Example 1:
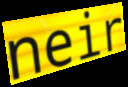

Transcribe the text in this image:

neir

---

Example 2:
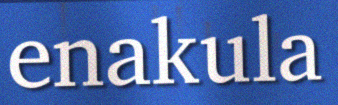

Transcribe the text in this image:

enakula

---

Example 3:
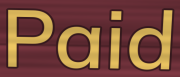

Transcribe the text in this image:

Paid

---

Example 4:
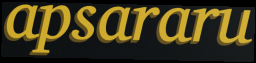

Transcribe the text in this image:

apsararu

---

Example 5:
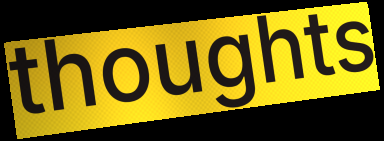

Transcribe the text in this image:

thoughts